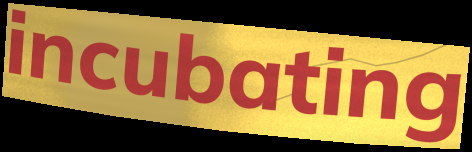
incubating